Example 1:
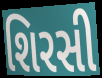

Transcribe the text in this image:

શિરસી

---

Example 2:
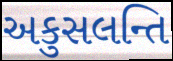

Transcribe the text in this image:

અકુસલન્તિ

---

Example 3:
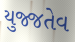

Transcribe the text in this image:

યુજ્જતેવ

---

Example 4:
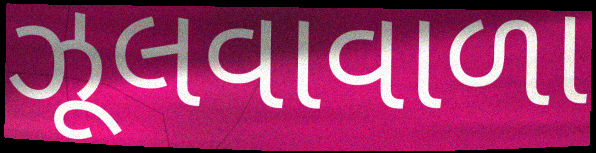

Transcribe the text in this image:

ઝૂલવાવાળા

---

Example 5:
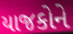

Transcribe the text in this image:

યાજકોને